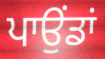
ਪਾਉਂਡਾਂ